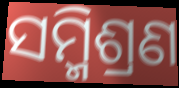
ସମ୍ମିଶ୍ରଣ